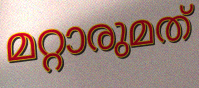
മറ്റാരുമത്